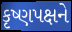
કૃષ્ણપક્ષને